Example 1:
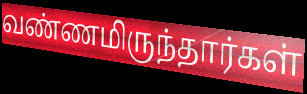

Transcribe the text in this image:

வண்ணமிருந்தார்கள்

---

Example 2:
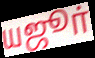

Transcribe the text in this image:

யஜூர்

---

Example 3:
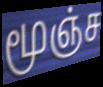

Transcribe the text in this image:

மூஞ்ச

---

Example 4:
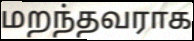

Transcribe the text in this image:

மறந்தவராக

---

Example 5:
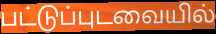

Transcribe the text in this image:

பட்டுப்புடவையில்